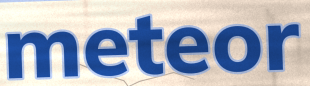
meteor